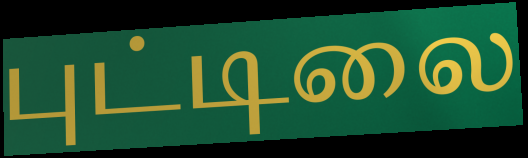
புட்டிலை